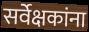
सर्वेक्षकांना